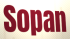
Sopan